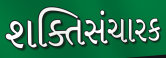
શક્તિસંચારક